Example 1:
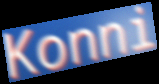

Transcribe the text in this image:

Konni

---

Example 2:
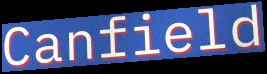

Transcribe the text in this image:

Canfield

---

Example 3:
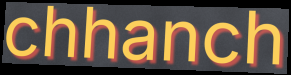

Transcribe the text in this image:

chhanch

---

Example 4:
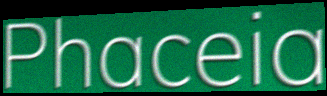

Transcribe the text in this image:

Phaceia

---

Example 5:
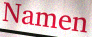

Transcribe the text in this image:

Namen